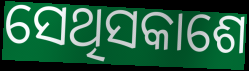
ସେଥିସକାଶେ